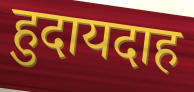
हुदायदाह